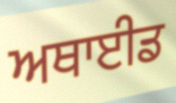
ਅਥਾਈਡ